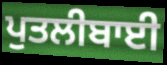
ਪੁਤਲੀਬਾਈ